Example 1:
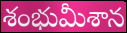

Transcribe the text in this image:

శంభుమీశాన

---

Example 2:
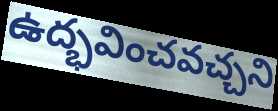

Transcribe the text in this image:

ఉద్భవించవచ్చని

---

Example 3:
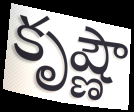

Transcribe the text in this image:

కృష్ణౌ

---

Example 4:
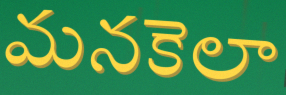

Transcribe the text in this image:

మనకెలా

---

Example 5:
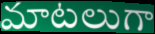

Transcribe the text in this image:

మాటలుగా